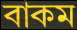
বাকম